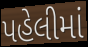
પહેલીમાં